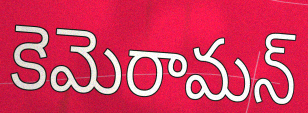
కెమెరామన్